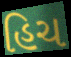
હિચ